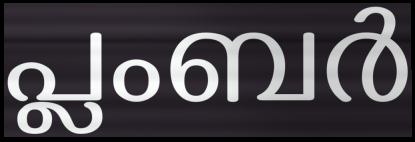
പ്ലംബർ